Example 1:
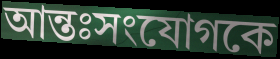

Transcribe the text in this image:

আন্তঃসংযোগকে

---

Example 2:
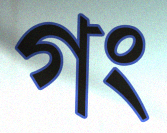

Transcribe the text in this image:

গং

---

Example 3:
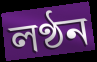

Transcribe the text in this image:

লণ্ঠন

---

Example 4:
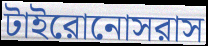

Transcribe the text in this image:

টাইরোনোসরাস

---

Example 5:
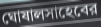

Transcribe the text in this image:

ঘোষালসাহেবের